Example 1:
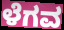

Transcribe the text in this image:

ಳೆಗವ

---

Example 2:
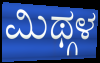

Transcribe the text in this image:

ಮಿಥ್ಗಳ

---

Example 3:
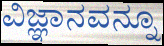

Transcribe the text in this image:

ವಿಜ್ಞಾನವನ್ನೂ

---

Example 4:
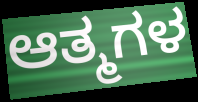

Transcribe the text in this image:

ಆತ್ಮಗಳ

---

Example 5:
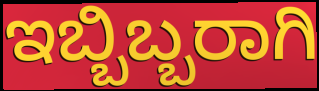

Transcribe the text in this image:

ಇಬ್ಬಿಬ್ಬರಾಗಿ